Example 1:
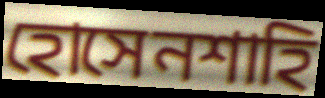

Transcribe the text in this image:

হোসেনশাহি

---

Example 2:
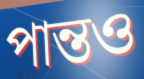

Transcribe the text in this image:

পান্তও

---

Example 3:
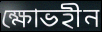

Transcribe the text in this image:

ক্ষোভহীন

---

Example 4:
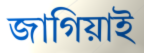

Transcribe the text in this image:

জাগিয়াই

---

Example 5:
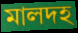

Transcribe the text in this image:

মালদহ